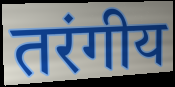
तरंगीय